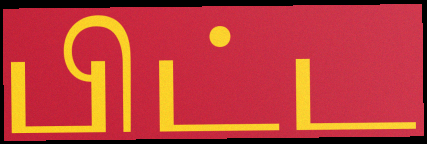
பிட்ட